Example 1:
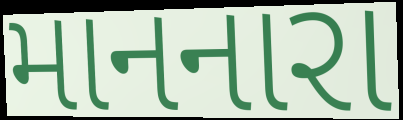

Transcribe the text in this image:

માનનારા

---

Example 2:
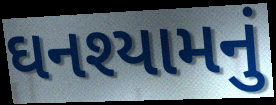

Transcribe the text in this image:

ઘનશ્યામનું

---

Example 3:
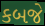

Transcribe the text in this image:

કબજે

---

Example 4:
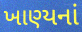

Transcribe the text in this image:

ખાણ્યનાં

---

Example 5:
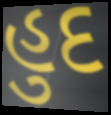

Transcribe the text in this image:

હુદ